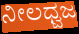
ನೀಲಧ್ವಜ